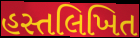
હસ્તલિખિત